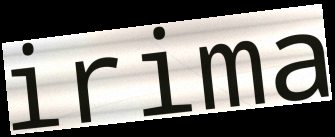
irima